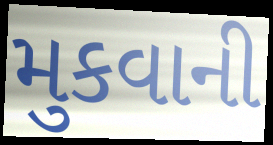
મુકવાની